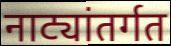
नाट्यांतर्गत